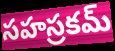
సహస్రకమ్